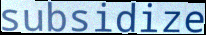
subsidize